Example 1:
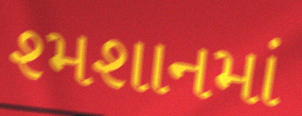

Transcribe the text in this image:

શ્મશાનમાં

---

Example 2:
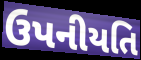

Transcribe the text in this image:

ઉપનીયતિ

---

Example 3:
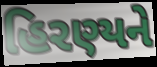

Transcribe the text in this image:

હિરણ્યને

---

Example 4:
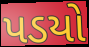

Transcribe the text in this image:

પડયો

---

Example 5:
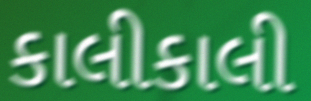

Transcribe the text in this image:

કાલીકાલી